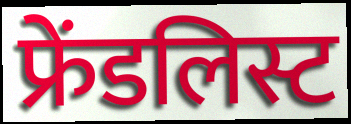
फ्रेंडलिस्ट